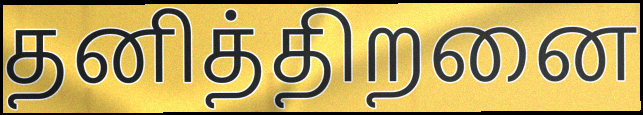
தனித்திறனை